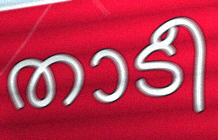
താടീ